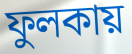
ফুলকায়